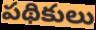
పథికులు